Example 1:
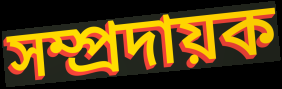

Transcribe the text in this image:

সম্প্ৰদায়ক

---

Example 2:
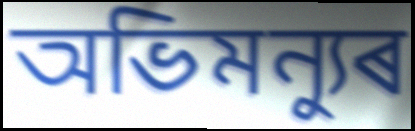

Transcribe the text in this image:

অভিমন্যুৰ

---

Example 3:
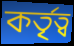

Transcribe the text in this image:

কৰ্তৃত্ব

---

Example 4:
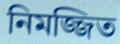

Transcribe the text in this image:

নিমজ্জিত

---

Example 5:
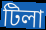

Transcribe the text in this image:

টিলা